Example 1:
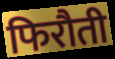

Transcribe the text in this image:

फिरौती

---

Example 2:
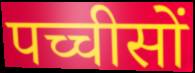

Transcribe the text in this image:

पच्चीसों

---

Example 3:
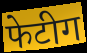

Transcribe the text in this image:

फेटीग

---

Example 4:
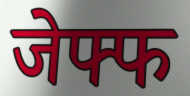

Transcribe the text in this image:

जेफ्फ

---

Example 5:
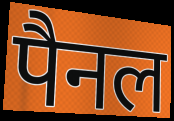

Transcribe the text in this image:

पैनल